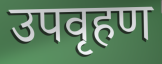
उपवृहण